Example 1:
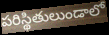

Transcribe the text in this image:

పరిస్థితులుండాలో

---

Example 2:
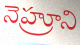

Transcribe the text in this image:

నెహ్రూని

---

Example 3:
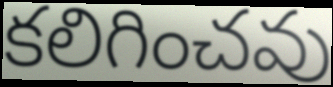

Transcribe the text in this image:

కలిగించవు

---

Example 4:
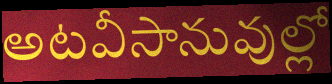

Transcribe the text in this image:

అటవీసానువుల్లో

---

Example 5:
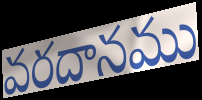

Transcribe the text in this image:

వరదానము